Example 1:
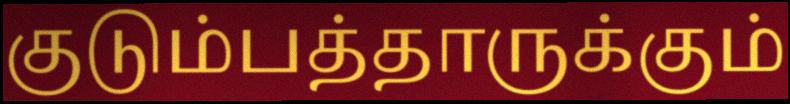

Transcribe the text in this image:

குடும்பத்தாருக்கும்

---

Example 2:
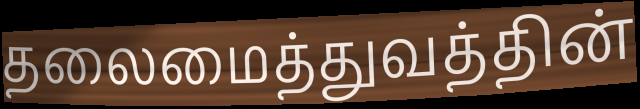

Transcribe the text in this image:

தலைமைத்துவத்தின்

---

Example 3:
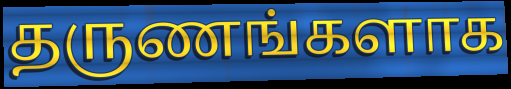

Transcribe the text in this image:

தருணங்களாக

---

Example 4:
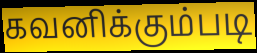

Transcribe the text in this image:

கவனிக்கும்படி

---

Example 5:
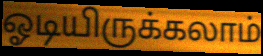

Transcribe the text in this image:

ஓடியிருக்கலாம்